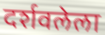
दर्शवलेला